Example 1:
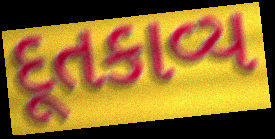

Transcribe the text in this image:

દૂતકાવ્ય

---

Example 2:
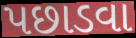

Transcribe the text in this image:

પછાડવા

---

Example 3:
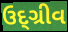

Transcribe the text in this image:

ઉદ્ગ્રીવ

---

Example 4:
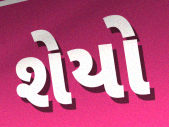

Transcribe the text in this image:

શેયો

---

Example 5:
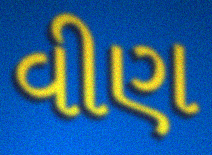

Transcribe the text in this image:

વીણ